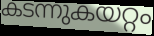
കടന്നുകയറ്റം